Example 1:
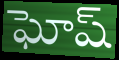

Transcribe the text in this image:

ఘోష్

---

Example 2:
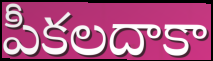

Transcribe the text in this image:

పీకలదాకా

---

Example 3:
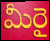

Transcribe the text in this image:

మీరై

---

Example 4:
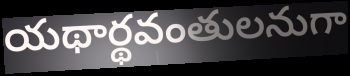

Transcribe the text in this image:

యథార్థవంతులనుగా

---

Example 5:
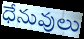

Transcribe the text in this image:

ధేనువులు